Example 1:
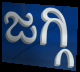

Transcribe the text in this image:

ಜಗ್ಗಿ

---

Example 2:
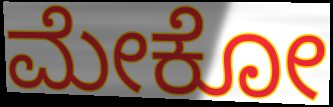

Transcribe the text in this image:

ಮೇಕೋ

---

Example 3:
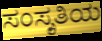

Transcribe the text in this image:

ಸಂಸ್ಕೃತಿಯ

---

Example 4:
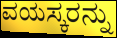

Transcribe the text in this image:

ವಯಸ್ಕರನ್ನು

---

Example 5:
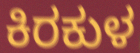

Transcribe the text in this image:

ಕಿರಕುಳ